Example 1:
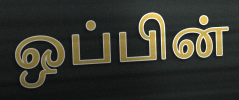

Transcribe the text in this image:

ஒப்பின்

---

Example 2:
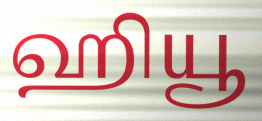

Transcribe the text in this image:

ஹியூ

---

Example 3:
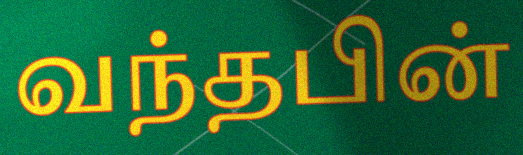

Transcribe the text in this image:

வந்தபின்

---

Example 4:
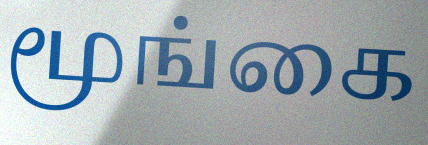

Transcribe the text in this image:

மூங்கை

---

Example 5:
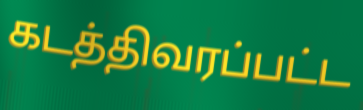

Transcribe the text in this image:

கடத்திவரப்பட்ட